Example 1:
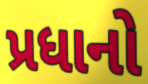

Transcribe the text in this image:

પ્રધાનો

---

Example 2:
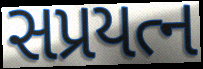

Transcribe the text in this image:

સપ્રયત્ન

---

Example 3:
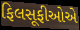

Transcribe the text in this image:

ફિલસૂફીઓએ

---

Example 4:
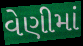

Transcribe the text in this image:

વેણીમાં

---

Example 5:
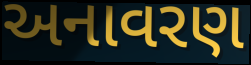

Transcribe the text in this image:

અનાવરણ